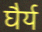
घैर्य